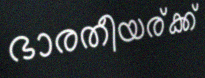
ഭാരതീയര്ക്ക്